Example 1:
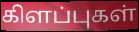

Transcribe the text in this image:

கிளப்புகள்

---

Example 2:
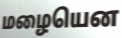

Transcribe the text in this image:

மழையென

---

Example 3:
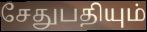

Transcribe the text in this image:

சேதுபதியும்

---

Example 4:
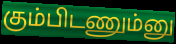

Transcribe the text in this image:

கும்பிடணும்னு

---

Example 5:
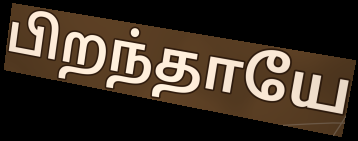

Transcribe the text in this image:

பிறந்தாயே